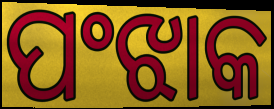
ପଂଝାକ